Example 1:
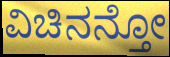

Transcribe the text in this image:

ವಿಚಿನನ್ತೋ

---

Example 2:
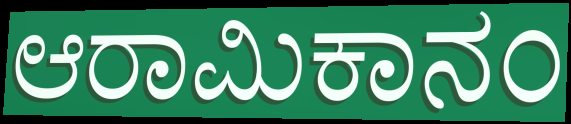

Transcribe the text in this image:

ಆರಾಮಿಕಾನಂ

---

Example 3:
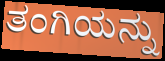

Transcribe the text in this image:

ತಂಗಿಯನ್ನು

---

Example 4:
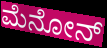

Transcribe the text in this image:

ಮೆನೋನ್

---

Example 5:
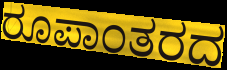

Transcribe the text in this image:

ರೂಪಾಂತರದ